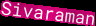
Sivaraman